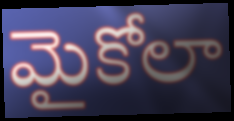
మైకోలా